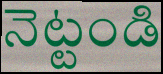
నెట్టండి